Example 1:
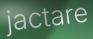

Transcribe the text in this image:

jactare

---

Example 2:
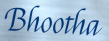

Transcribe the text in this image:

Bhootha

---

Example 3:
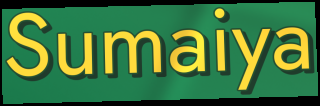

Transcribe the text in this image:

Sumaiya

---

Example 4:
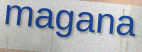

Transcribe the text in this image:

magana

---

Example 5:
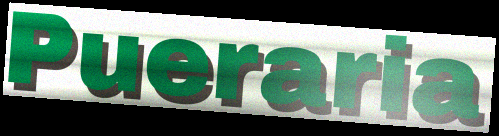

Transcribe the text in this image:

Pueraria